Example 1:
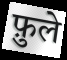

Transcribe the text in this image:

फ़ुले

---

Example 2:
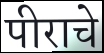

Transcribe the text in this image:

पीराचे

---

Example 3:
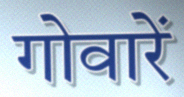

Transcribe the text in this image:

गोवारें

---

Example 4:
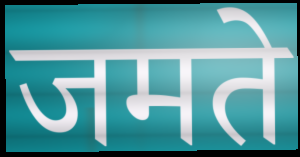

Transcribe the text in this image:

जमते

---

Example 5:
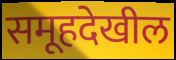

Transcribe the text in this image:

समूहदेखील